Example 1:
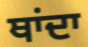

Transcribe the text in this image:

ਥਾਂਦਾ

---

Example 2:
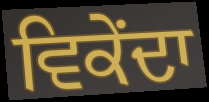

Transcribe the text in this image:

ਵਿਕੇਂਦਾ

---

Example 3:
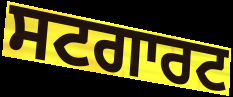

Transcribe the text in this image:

ਸਟਗਾਰਟ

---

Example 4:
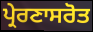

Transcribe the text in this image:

ਪ੍ਰੇਰਣਾਸਰੋਤ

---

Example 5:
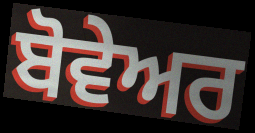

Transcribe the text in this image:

ਬੋਵੇਅਰ